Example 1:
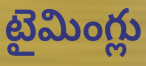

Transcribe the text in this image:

టైమింగ్లు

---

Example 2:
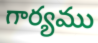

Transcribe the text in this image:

గార్యము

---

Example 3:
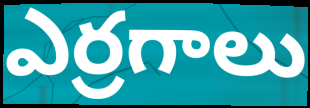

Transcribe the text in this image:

ఎర్రగాలు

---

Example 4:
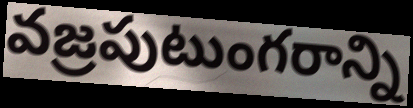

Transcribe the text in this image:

వజ్రపుటుంగరాన్ని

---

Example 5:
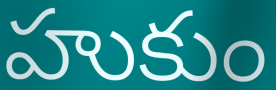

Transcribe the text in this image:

హుకుం